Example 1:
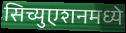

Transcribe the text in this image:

सिच्युएशनमध्ये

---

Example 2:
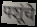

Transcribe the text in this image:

पशूंचे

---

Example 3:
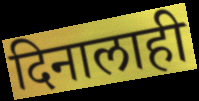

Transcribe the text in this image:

दिनालाही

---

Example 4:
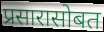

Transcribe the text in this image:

प्रसारासोबत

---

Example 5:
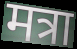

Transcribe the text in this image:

मत्रा